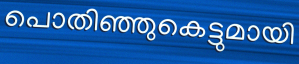
പൊതിഞ്ഞുകെട്ടുമായി